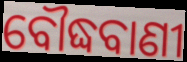
ବୌଦ୍ଧବାଣୀ